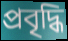
প্রবৃদ্ধি